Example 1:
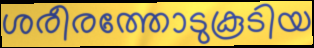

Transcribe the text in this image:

ശരീരത്തോടുകൂടിയ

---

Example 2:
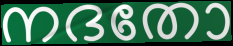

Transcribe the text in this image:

നദതോ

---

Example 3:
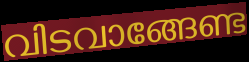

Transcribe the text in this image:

വിടവാങ്ങേണ്ട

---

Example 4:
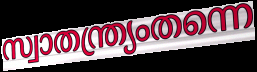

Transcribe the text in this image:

സ്വാതന്ത്ര്യംതന്നെ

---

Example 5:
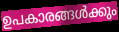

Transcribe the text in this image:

ഉപകാരങ്ങൾക്കും